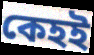
কেহই